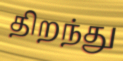
திறந்து